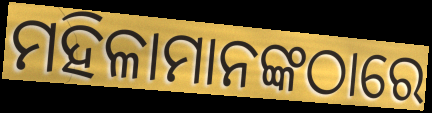
ମହିଳାମାନଙ୍କଠାରେ